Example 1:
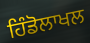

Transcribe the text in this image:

ਹਿੰਡੋਲਾਖਲ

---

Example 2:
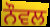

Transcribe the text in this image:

ਨੌਵਲ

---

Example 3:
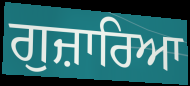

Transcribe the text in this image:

ਗੁਜ਼ਾਰਿਆ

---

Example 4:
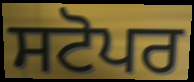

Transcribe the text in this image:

ਸਟੋਪਰ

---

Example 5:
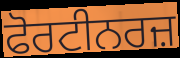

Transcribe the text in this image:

ਫੋਰਟੀਨਰਜ਼